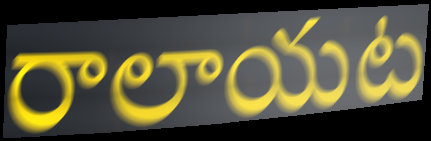
రాలాయట